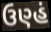
ઉણ્હં